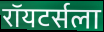
रॉयटर्सला